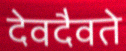
देवदैवते